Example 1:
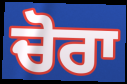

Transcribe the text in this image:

ਚੋਰਾ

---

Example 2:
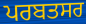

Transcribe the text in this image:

ਪਰਬਤਸਰ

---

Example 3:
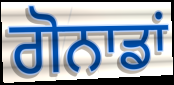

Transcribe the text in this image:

ਗੋਨਾਡਾਂ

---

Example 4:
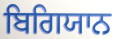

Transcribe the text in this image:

ਬਿਗਿਯਾਨ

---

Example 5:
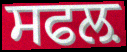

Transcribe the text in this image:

ਸਫਲ਼